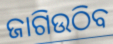
ଜାଗିଉଠିବ